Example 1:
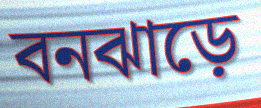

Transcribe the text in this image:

বনঝাড়ে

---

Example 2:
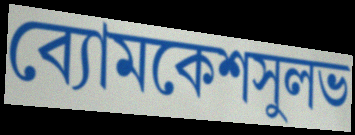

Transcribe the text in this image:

ব্যোমকেশসুলভ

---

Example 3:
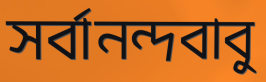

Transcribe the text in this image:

সর্বানন্দবাবু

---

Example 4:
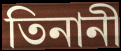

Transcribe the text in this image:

তিনানী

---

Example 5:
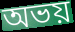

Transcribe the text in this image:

অভয়